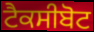
ਟੈਕਸੀਬੋਟ